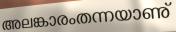
അലങ്കാരംതന്നയാണു്